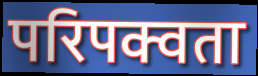
परिपक्वता